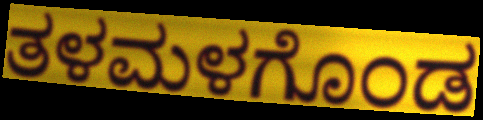
ತಳಮಳಗೊಂಡ